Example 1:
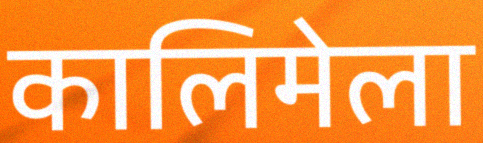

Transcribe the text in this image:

कालिमेला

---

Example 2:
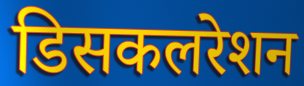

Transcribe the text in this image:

डिसकलरेशन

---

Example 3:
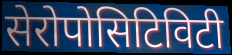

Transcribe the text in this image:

सेरोपोसिटिविटी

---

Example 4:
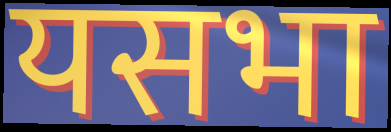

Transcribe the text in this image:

यसभा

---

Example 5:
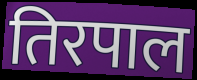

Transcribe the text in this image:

तिरपाल